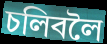
চলিবলৈ